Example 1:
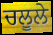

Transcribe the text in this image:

ਚਲੂਲੇ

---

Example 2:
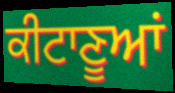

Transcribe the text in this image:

ਕੀਟਾਣੂਆਂ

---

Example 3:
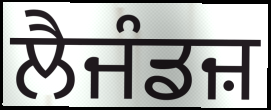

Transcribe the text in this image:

ਲੈਜੰਡਜ਼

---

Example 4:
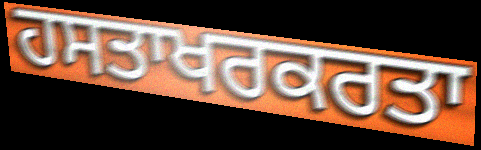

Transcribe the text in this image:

ਹਸਤਾਖਰਕਰਤਾ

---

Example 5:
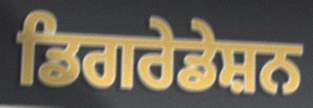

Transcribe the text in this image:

ਡਿਗਰੇਡੇਸ਼ਨ